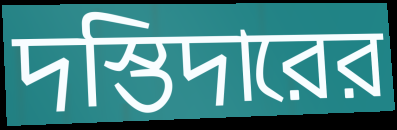
দস্তিদারের